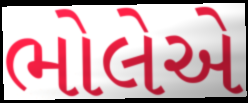
ભોલેએ